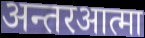
अन्तरआत्मा